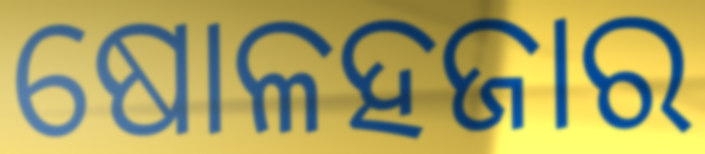
ଷୋଳହଜାର